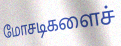
மோசடிகளைச்